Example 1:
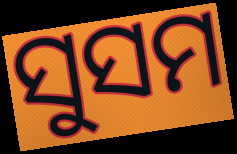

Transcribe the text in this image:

ସୁସମ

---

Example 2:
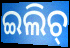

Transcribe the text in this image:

ଇଲିଚ୍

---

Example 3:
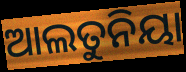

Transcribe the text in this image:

ଆଲତୁନିୟା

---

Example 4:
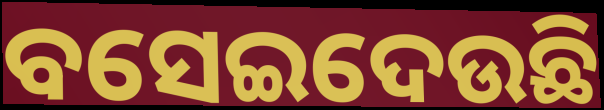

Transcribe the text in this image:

ବସେଇଦେଉଛି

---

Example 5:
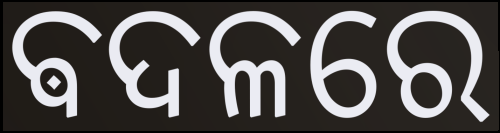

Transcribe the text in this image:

ଵଦଳରେ